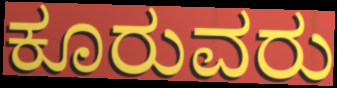
ಕೂರುವರು